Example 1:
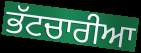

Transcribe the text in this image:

ਭੱਟਚਾਰੀਆ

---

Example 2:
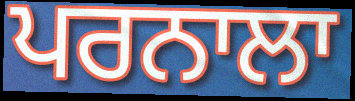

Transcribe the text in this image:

ਪਰਨਾਲਾ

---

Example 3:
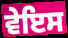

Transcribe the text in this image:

ਵੇਇਸ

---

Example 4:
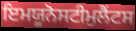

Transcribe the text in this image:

ਇਮਯੂਨੋਸਟੀਮੁਲੈਂਟਸ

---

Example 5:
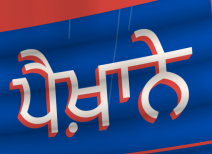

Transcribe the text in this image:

ਪੈਖ਼ਾਨੇ